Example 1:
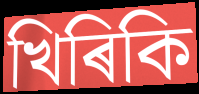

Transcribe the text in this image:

খিৰিকি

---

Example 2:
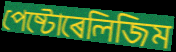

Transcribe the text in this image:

পেষ্টোৰেলিজিম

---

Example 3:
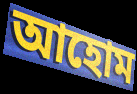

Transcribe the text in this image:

আহোম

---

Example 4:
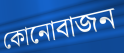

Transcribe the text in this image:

কোনোবাজন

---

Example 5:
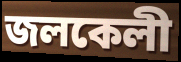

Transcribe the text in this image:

জলকেলী